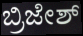
ಬ್ರಿಜೇಶ್